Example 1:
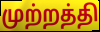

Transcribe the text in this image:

முற்றத்தி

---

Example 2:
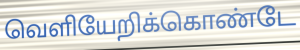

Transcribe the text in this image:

வெளியேறிக்கொண்டே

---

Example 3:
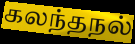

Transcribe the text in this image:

கலந்தநல்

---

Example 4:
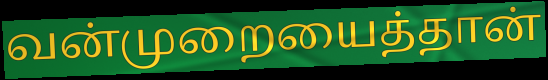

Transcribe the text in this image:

வன்முறையைத்தான்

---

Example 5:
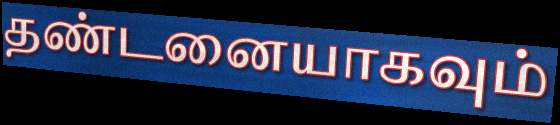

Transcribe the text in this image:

தண்டனையாகவும்